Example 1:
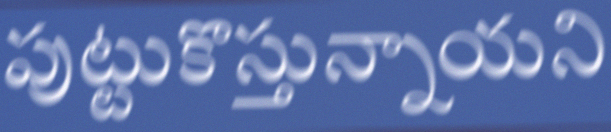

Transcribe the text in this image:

పుట్టుకొస్తున్నాయని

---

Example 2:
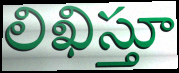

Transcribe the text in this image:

లిఖిస్తూ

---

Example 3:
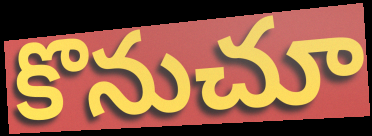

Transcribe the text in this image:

కొనుచూ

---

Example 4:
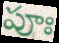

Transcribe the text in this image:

పూః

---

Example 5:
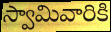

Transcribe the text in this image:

స్వామివారికి